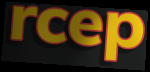
rcep